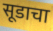
सूडाचा